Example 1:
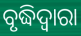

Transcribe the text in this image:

ବୃଦ୍ଧିଦ୍ୱାରା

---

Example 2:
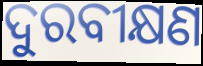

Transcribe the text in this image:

ଦୁରବୀକ୍ଷଣ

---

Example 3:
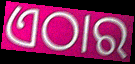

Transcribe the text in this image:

ଏଠାର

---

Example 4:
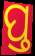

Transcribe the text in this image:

ପ୍ତ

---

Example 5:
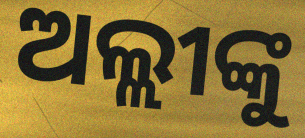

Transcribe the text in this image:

ଅଲ୍ଲୀଙ୍କୁ